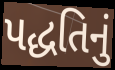
પદ્ધતિનું